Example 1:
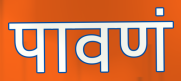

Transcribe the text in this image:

पावणं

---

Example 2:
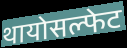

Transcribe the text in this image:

थायोसल्फेट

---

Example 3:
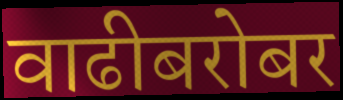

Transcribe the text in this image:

वाढीबरोबर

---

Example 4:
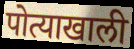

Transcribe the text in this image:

पोत्याखाली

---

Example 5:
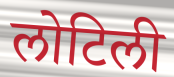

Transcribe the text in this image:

लोटिली